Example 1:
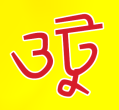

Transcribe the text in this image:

ওটু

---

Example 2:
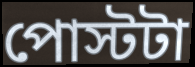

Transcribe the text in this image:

পোস্টটা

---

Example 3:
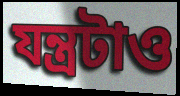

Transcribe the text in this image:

যন্ত্রটাও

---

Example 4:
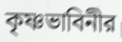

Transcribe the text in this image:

কৃষ্ণভাবিনীর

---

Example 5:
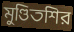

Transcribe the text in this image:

মুণ্ডিতশির